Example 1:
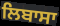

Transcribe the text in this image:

ਲਿਬਾਸਾ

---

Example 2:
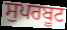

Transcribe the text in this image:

ਸੁਪਰਬੂਟ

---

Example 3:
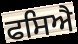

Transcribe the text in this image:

ਫਸਿਐ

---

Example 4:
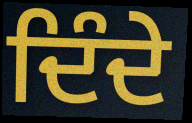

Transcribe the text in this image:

ਦਿੰਦੇ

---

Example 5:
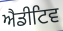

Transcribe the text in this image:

ਐਡੀਟਿਵ